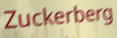
Zuckerberg